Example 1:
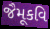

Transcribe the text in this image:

જૈમૂકવિ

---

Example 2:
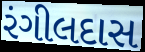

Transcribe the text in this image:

રંગીલદાસ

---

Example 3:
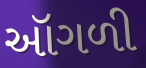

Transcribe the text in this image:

ઑગળી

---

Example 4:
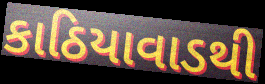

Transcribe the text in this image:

કાઠિયાવાડથી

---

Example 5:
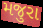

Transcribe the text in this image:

મજુરા